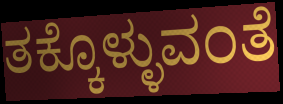
ತಕ್ಕೊಳ್ಳುವಂತೆ